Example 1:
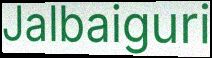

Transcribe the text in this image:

Jalbaiguri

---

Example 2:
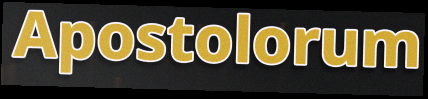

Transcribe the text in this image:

Apostolorum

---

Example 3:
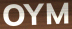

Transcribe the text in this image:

OYM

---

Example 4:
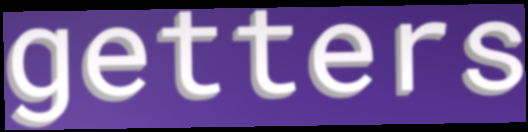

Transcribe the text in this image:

getters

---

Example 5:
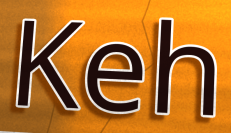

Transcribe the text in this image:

Keh